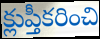
క్లుప్తీకరించి